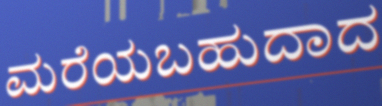
ಮರೆಯಬಹುದಾದ